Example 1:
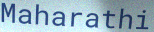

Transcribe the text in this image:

Maharathi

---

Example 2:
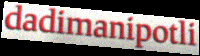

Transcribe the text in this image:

dadimanipotli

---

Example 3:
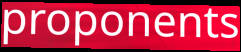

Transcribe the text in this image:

proponents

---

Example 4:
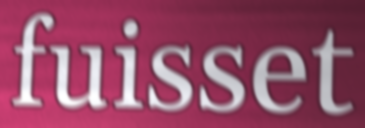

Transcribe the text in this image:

fuisset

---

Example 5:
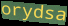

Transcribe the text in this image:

orydsa